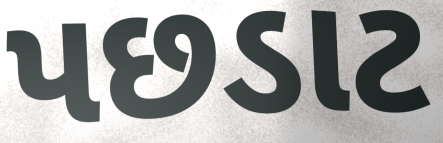
પછડાટ